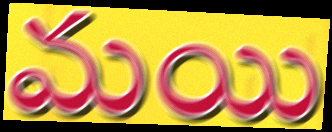
మయి